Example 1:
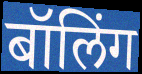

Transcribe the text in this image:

बॉलिंग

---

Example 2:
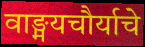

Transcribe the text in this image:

वाङ्मयचौर्याचे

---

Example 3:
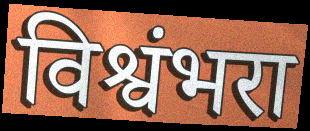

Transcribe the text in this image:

विश्वंभरा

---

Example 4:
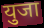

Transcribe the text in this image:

युजा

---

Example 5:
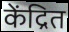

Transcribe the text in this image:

केंद्रित